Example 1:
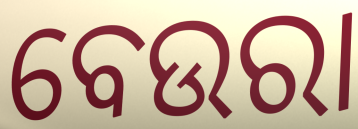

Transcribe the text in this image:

ବେଉରା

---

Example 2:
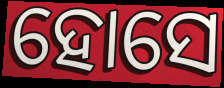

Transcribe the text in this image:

ହୋସେ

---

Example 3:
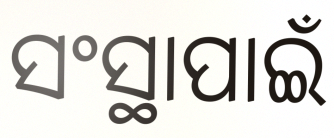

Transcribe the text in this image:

ସଂସ୍ଥାପାଇଁ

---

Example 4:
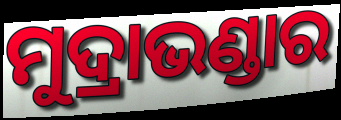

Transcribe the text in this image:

ମୁଦ୍ରାଭଣ୍ଡାର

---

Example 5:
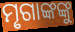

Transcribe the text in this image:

ମୃଗାଙ୍କଙ୍କୁ